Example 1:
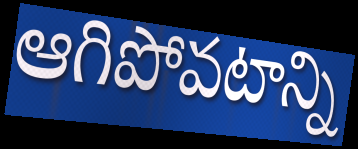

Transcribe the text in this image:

ఆగిపోవటాన్ని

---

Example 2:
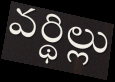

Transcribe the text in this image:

వర్థిల్లు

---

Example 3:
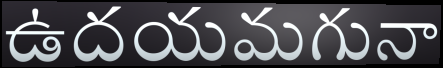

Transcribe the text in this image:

ఉదయమగునా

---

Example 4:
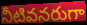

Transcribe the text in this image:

నీటివనరుగా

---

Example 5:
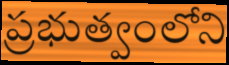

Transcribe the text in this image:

ప్రభుత్వంలోని